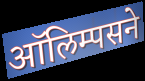
ऑलिम्पसने